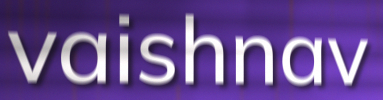
vaishnav